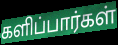
களிப்பார்கள்